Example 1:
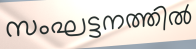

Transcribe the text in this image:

സംഘട്ടനത്തിൽ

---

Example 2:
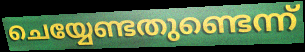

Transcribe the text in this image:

ചെയ്യേണ്ടതുണ്ടെന്ന്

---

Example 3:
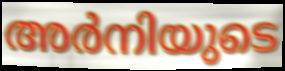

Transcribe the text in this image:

അർനിയുടെ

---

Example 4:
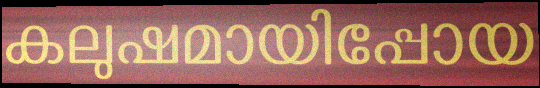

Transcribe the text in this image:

കലുഷമായിപ്പോയ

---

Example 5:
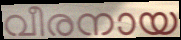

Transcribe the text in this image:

വീരനായ